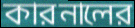
কারনালের